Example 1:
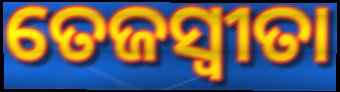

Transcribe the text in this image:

ତେଜସ୍ଵୀତା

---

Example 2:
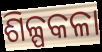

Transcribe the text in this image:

ଶିଳ୍ପକଳା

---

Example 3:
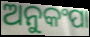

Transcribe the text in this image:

ଅନୁକଂପା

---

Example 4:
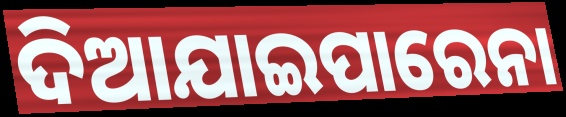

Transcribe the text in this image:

ଦିଆଯାଇପାରେନା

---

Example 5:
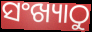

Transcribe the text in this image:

ସଂଖ୍ୟାଠୁ